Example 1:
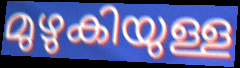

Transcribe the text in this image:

മുഴുകിയുള്ള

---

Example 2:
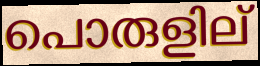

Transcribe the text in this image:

പൊരുളില്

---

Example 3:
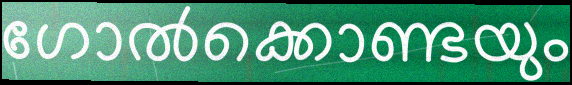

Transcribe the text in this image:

ഗോൽക്കൊണ്ടയും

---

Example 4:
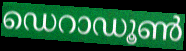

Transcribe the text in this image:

ഡെറാഡൂൺ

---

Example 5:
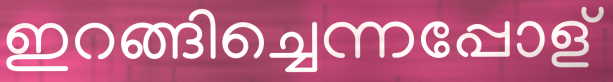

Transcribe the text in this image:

ഇറങ്ങിച്ചെന്നപ്പോള്